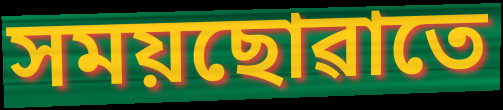
সময়ছোৱাতে